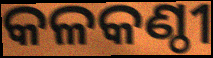
କଳକଣ୍ଠୀ